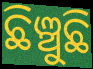
ଛିଞ୍ଚୁଛି